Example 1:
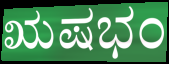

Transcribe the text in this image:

ಋಷಭಂ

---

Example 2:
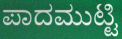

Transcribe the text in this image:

ಪಾದಮುಟ್ಟಿ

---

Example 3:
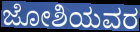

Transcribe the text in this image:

ಜೋಶಿಯವರ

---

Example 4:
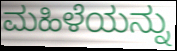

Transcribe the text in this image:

ಮಹಿಳೆಯನ್ನು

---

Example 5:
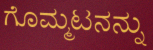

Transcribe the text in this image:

ಗೊಮ್ಮಟನನ್ನು